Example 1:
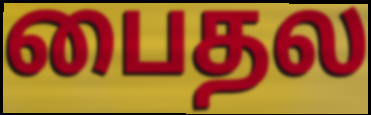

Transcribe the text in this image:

பைதல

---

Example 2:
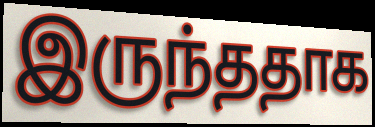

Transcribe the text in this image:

இருந்ததாக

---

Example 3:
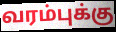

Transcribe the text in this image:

வரம்புக்கு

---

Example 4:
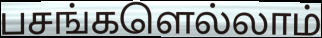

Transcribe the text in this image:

பசங்களெல்லாம்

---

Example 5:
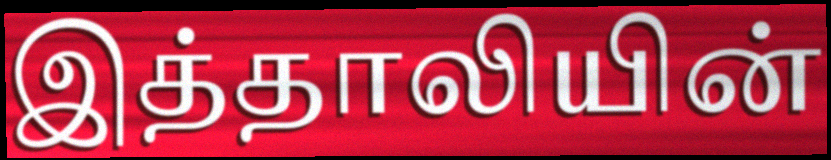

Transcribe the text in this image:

இத்தாலியின்